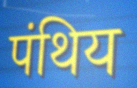
पंथिय